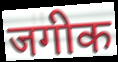
जगीक